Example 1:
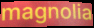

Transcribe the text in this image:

magnolia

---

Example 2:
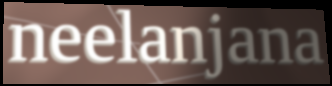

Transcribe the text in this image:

neelanjana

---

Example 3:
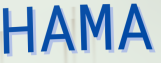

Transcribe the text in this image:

HAMA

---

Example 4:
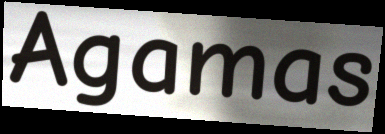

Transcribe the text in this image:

Agamas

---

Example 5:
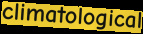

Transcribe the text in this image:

climatological